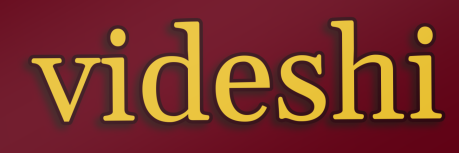
videshi